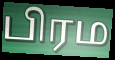
பிரம